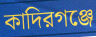
কাদিরগঞ্জে